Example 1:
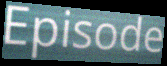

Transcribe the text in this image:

Episode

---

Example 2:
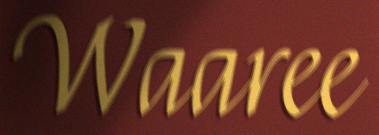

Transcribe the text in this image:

Waaree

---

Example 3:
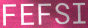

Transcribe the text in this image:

FEFSI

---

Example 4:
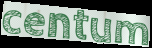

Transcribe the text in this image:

centum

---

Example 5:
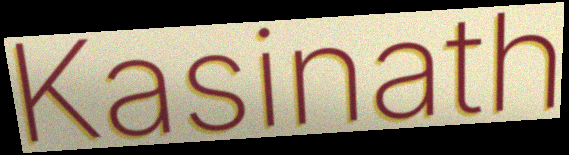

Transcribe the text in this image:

Kasinath